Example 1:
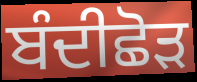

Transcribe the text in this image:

ਬੰਦੀਛੋੜ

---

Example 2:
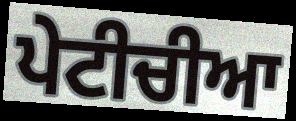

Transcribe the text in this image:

ਪੇਟੀਚੀਆ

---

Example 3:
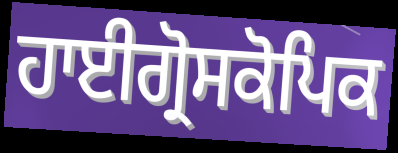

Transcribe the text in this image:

ਹਾਈਗ੍ਰੋਸਕੋਪਿਕ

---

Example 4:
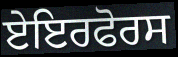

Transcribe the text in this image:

ਏਇਰਫੋਰਸ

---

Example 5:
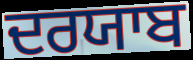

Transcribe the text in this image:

ਦਰਯਾਬ